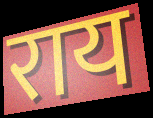
राय